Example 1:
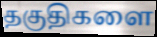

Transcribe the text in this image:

தகுதிகளை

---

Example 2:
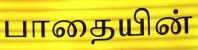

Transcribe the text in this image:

பாதையின்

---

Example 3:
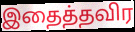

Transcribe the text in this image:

இதைத்தவிர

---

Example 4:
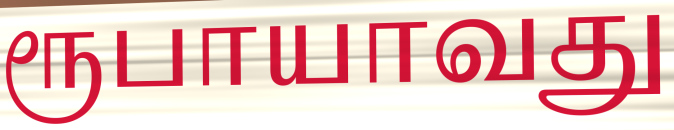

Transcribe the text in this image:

ரூபாயாவது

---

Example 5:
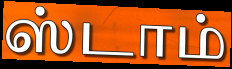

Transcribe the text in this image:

ஸ்டாம்